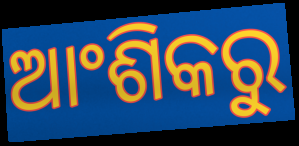
ଆଂଶିକରୁ